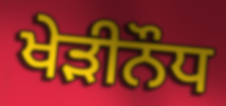
ਖੇੜੀਨੌਧ